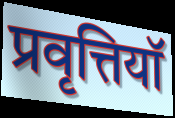
प्रवृत्तियॉ